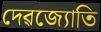
দেৱজ্যোতি